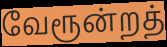
வேரூன்றத்